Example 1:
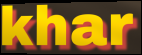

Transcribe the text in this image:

khar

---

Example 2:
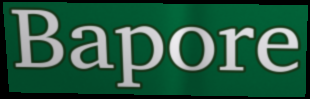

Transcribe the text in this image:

Bapore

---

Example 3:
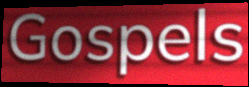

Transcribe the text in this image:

Gospels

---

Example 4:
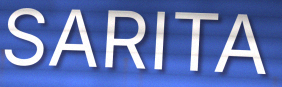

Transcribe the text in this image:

SARITA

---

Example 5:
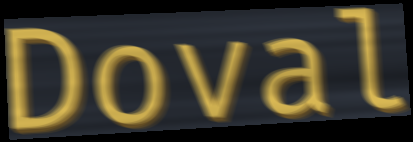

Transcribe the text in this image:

Doval